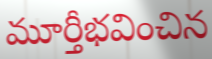
మూర్తీభవించిన